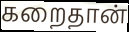
கறைதான்